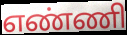
எண்ணி